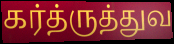
கர்த்ருத்துவ